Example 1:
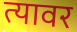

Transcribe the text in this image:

त्‍यावर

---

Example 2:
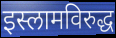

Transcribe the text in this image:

इस्लामविरुद्ध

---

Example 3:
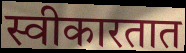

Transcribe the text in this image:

स्वीकारतात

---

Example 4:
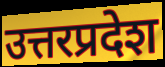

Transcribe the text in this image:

उत्तरप्रदेश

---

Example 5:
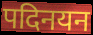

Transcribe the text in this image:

पदिनयन